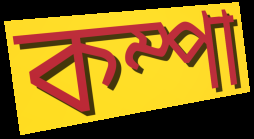
কম্পা